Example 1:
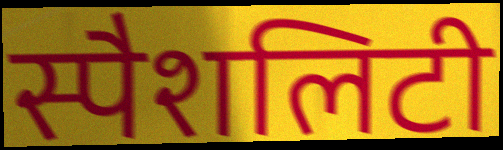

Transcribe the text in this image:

स्पैशलिटी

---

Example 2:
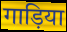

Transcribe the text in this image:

गाड़िया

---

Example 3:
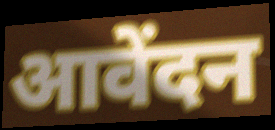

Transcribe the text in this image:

आवेंदन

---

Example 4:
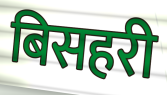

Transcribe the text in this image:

बिसहरी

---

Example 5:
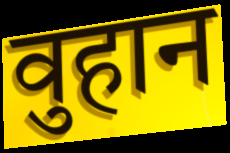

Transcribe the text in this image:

वुहान